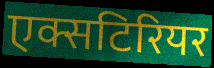
एक्सटिरियर